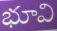
భూవి